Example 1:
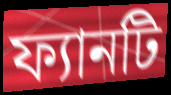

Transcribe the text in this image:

ফ্যানটি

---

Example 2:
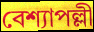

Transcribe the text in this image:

বেশ্যাপল্লী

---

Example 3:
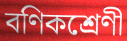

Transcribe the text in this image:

বণিকশ্রেণী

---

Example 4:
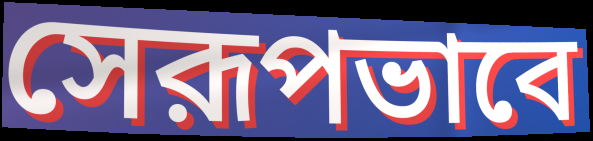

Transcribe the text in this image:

সেরূপভাবে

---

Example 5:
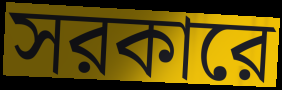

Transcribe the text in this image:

সরকারে